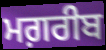
ਮਗ਼ਰੀਬ